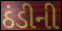
ઠંડીની